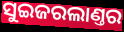
ସୁଇଜରଲାଣ୍ତର